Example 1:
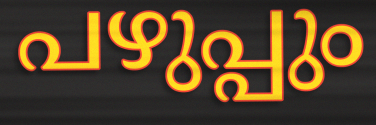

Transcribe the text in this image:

പഴുപ്പും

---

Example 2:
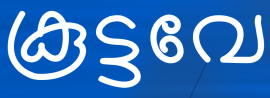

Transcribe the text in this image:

കൂട്ടവേ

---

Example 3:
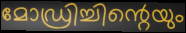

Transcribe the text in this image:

മോഡ്രിച്ചിന്റെയും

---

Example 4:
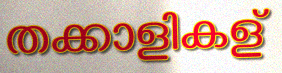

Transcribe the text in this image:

തക്കാളികള്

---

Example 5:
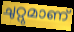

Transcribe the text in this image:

ചുറ്റുമാണ്